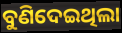
ବୁଣିଦେଇଥିଲା